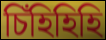
চিঁহিহিহি